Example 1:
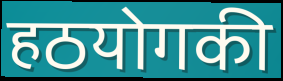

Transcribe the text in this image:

हठयोगकी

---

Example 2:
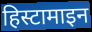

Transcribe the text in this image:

हिस्टामाइन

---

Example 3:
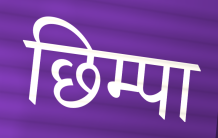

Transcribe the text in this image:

छिम्पा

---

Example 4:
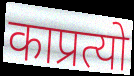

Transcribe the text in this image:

काप्रत्यो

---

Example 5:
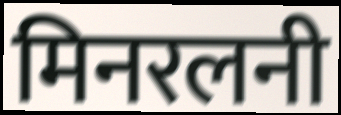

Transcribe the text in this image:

मिनरलनी